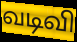
வடிவி